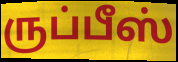
ருப்பீஸ்